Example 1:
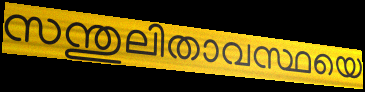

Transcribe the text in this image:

സന്തുലിതാവസ്ഥയെ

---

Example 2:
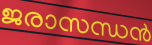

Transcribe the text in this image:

ജരാസന്ധൻ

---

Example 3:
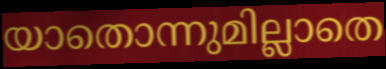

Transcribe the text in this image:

യാതൊന്നുമില്ലാതെ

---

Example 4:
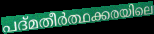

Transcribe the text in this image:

പദ്മതീർത്ഥക്കരയിലെ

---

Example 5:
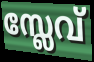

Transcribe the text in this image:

സ്ലേവ്